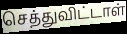
செத்துவிட்டாள்